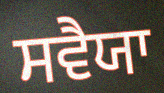
ਸਵੈਯਾ